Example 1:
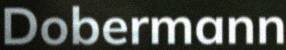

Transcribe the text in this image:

Dobermann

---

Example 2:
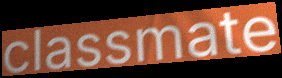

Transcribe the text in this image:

classmate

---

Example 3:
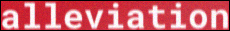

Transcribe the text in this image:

alleviation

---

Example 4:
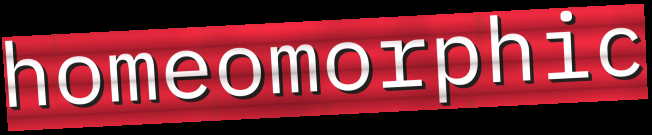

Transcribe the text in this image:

homeomorphic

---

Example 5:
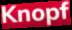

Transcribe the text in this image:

Knopf